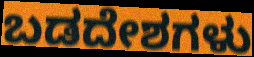
ಬಡದೇಶಗಳು